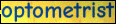
optometrist